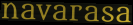
navarasa